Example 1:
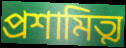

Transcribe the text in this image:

প্রশামিত্ম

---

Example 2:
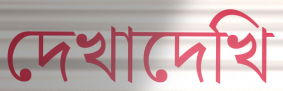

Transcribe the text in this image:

দেখাদেখি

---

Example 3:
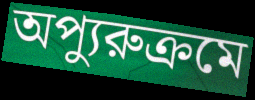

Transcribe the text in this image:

অপ্যুরুক্রমে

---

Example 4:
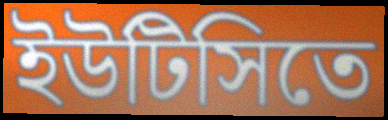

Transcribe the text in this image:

ইউটিসিতে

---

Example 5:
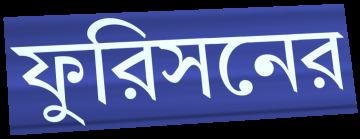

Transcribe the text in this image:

ফুরিসনের